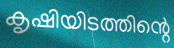
കൃഷിയിടത്തിന്റെ